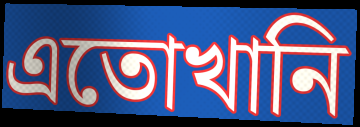
এতোখানি